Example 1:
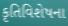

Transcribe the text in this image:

કૃતિવિશેષના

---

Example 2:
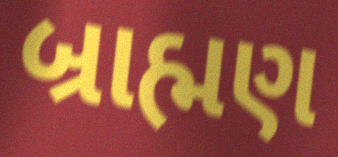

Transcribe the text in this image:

બ્રાહ્મણ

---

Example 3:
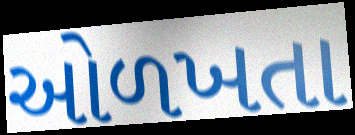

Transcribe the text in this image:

ઓળખતા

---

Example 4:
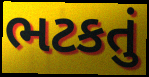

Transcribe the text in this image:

ભટકતું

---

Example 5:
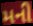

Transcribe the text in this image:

મની